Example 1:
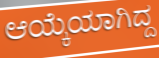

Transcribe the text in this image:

ಆಯ್ಕೆಯಾಗಿದ್ದ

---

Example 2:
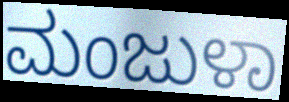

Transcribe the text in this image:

ಮಂಜುಳಾ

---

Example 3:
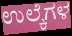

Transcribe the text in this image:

ಉಲ್ಕೆಗಳ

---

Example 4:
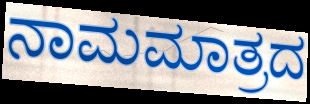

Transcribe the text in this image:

ನಾಮಮಾತ್ರದ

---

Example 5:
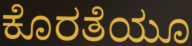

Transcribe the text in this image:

ಕೊರತೆಯೂ